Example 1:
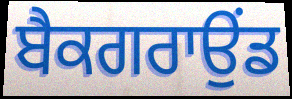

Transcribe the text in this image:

ਬੈਕਗਰਾਉਂਡ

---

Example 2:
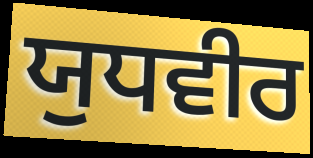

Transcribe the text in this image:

ਯੁਧਵੀਰ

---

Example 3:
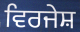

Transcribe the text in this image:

ਵਿਰਜੇਸ਼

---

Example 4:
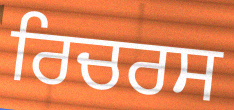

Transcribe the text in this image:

ਰਿਚਰਸ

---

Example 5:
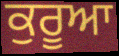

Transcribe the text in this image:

ਕੁਰੂਆ